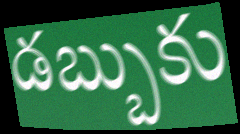
డబ్బుకు